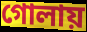
গোলায়